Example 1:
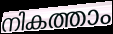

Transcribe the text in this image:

നികത്താം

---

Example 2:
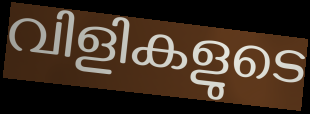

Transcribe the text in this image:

വിളികളുടെ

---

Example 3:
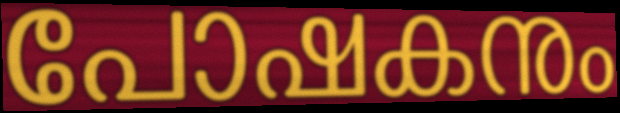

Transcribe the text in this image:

പോഷകനും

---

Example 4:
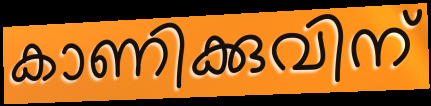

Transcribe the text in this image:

കാണിക്കുവിന്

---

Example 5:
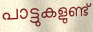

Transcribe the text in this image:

പാട്ടുകളുണ്ട്